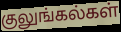
குலுங்கல்கள்